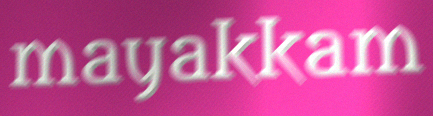
mayakkam